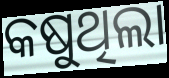
କଷୁଥିଲା